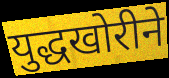
युद्धखोरीने